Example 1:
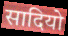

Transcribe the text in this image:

सादियो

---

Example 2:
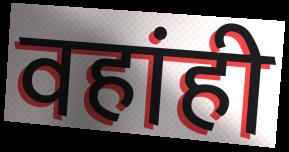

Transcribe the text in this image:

वहांही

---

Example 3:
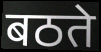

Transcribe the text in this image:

बठते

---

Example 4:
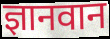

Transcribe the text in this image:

ज्ञानवान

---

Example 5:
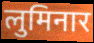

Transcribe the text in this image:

लुमिनार